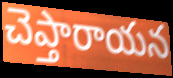
చెప్తారాయన